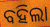
ବହିଲା